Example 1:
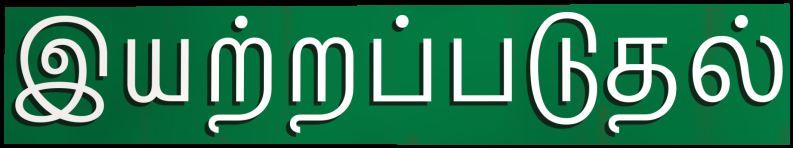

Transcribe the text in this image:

இயற்றப்படுதல்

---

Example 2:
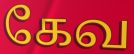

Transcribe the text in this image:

கேவ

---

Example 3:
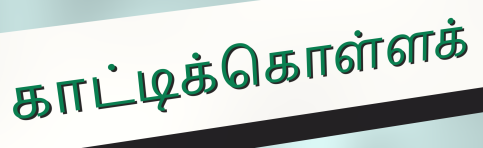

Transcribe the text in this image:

காட்டிக்கொள்ளக்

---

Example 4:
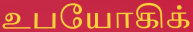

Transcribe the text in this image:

உபயோகிக்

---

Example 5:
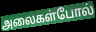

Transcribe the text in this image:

அலைகள்போல்